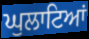
ਘੁਲਾਟਿਆਂ